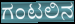
ಗಂಟಲಿನ